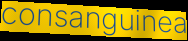
consanguinea